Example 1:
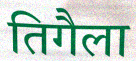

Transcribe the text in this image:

तिगैला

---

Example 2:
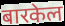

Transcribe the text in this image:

बारकेल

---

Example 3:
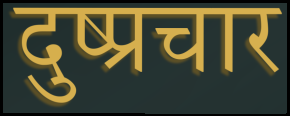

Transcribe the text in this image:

दुष्प्रचार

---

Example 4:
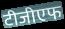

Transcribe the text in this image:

टीजीएफ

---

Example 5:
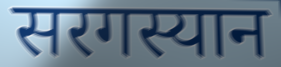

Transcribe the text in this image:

सरगस्यान